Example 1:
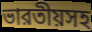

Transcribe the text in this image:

ভারতীয়সহ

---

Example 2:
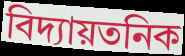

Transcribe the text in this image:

বিদ্যায়তনিক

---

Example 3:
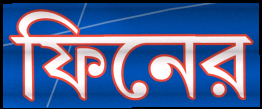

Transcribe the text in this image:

ফিনের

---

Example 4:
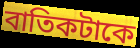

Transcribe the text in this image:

বাতিকটাকে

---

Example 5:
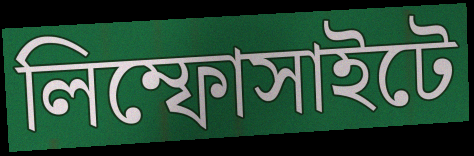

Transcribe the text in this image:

লিম্ফোসাইটে